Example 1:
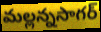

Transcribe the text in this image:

మల్లన్నసాగర్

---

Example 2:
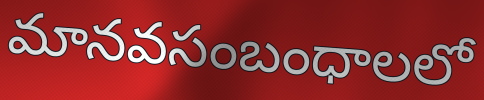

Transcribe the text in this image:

మానవసంబంధాలలో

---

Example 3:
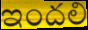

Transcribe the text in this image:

ఇందలి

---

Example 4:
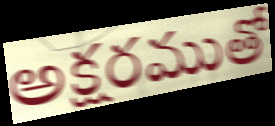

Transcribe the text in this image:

అక్షరముతో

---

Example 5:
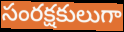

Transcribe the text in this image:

సంరక్షకులుగా